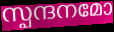
സ്പന്ദനമോ